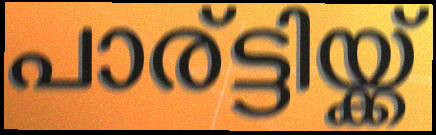
പാര്ട്ടിയ്ക്ക്